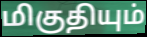
மிகுதியும்